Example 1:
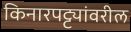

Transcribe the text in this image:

किनारपट्ट्यांवरील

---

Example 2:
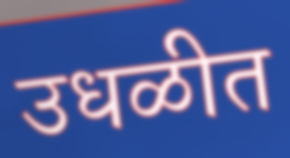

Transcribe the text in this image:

उधळीत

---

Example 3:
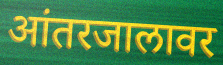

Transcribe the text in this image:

आंतरजालावर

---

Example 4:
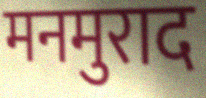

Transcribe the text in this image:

मनमुराद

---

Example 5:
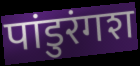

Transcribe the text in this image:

पांडुरंगश